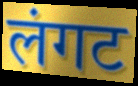
लंगट